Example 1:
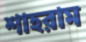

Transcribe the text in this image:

শাহরাম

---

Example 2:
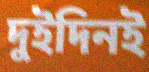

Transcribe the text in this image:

দুইদিনই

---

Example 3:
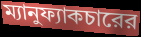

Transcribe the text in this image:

ম্যানুফ্যাকচারের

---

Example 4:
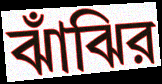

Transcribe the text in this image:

ঝাঁঝির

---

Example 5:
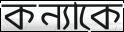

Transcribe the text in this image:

কন্যাকে